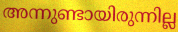
അന്നുണ്ടായിരുന്നില്ല